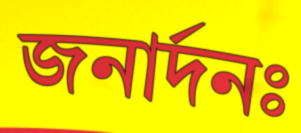
জনার্দনঃ